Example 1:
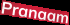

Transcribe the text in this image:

Pranaam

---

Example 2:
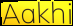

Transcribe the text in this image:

Aakhi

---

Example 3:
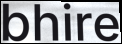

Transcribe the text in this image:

bhire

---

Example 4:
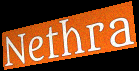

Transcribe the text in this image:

Nethra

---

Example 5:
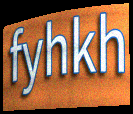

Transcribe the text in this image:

fyhkh